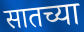
सातच्या